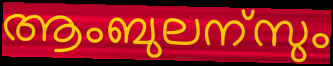
ആംബുലന്സും